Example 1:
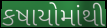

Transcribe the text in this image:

કષાયોમાંથી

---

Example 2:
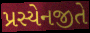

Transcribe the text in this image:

પ્રસ્યેનજીતે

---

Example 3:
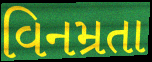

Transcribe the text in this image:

વિનમ્રતા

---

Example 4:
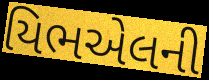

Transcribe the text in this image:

યિભએલની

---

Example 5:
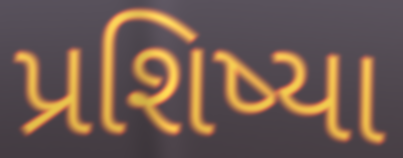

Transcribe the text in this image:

પ્રશિષ્યા